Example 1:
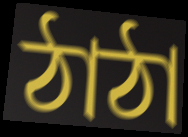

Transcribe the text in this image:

ঠাঠা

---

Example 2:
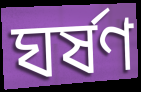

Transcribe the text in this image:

ঘর্ষণ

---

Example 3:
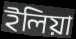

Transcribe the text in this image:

ইলিয়া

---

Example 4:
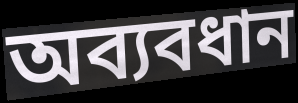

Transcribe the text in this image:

অব্যবধান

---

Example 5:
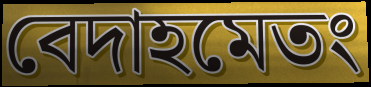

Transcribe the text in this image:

বেদাহমেতং